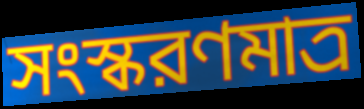
সংস্করণমাত্র